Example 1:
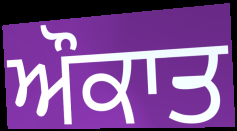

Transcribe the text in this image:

ਔਕਾਤ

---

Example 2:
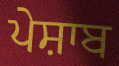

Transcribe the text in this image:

ਪੇਸ਼ਾਬ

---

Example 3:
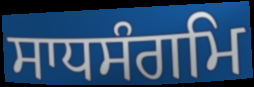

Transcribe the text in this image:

ਸਾਧਸੰਗਮਿ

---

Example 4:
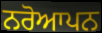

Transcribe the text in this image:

ਨਰੋਆਪਨ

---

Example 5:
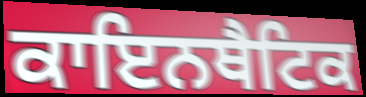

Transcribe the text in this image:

ਕਾਇਨਥੈਟਿਕ